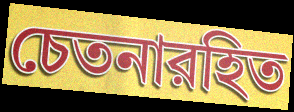
চেতনারহিত